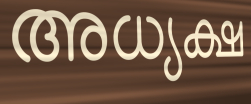
അധ്യക്ഷ